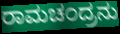
ರಾಮಚಂದ್ರನು